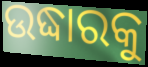
ଉଦ୍ଧାରକୁ